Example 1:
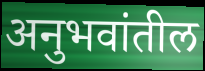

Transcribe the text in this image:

अनुभवांतील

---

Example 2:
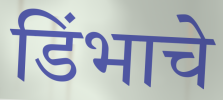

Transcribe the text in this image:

डिंभाचे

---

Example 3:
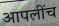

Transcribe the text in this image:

आपलींच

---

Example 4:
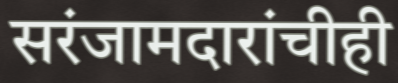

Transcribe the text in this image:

सरंजामदारांचीही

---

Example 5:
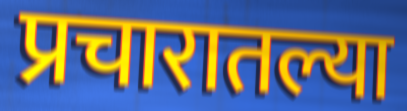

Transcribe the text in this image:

प्रचारातल्या